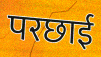
परछाई